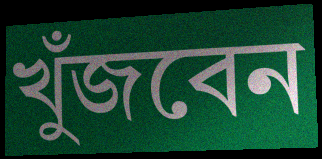
খুঁজবেন